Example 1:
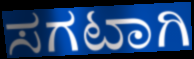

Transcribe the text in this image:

ಸಗಟಾಗಿ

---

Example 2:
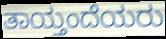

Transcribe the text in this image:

ತಾಯ್ತಂದೆಯರು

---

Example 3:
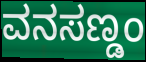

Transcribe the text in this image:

ವನಸಣ್ಡಂ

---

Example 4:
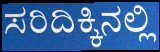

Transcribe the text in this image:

ಸರಿದಿಕ್ಕಿನಲ್ಲಿ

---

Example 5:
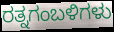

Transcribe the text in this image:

ರತ್ನಗಂಬಳಿಗಳು